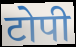
टोपी